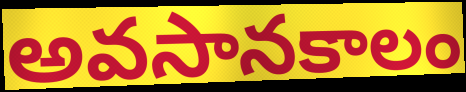
అవసానకాలం